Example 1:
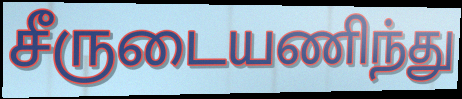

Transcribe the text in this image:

சீருடையணிந்து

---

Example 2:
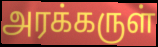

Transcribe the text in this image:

அரக்கருள்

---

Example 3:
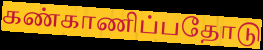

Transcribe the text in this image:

கண்காணிப்பதோடு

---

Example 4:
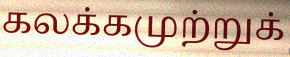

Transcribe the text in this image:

கலக்கமுற்றுக்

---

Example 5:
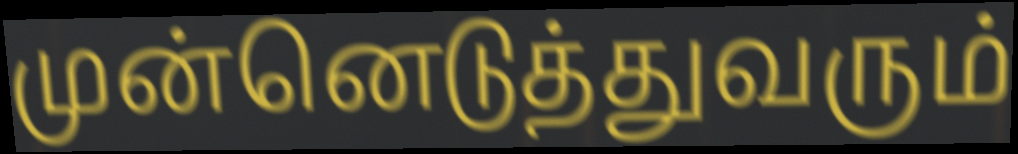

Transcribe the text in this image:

முன்னெடுத்துவரும்